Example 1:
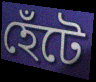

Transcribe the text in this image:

হেঁটে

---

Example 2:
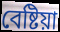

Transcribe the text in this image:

বেষ্টিয়া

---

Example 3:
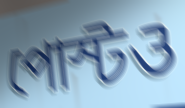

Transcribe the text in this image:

পোস্টও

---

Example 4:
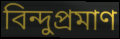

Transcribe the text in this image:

বিন্দুপ্রমাণ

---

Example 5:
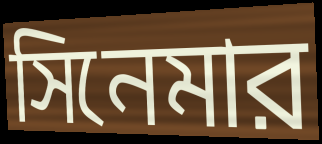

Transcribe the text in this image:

সিনেমার